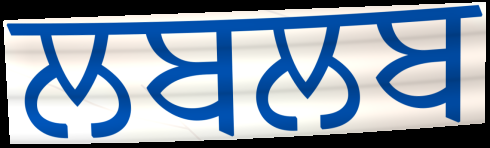
ਲਬਲਬ